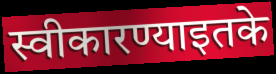
स्वीकारण्याइतके